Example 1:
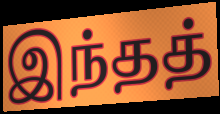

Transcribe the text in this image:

இந்தத்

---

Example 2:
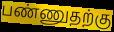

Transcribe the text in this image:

பண்ணுதற்கு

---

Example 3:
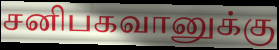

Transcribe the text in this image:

சனிபகவானுக்கு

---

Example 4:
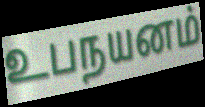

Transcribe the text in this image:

உபநயனம்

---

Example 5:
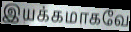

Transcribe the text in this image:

இயக்கமாகவே